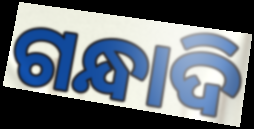
ଗନ୍ଧାଦି